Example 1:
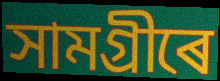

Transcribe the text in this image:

সামগ্ৰীৰে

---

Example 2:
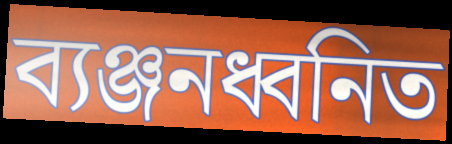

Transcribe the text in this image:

ব্যঞ্জনধ্বনিত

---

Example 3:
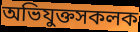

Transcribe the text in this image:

অভিযুক্তসকলক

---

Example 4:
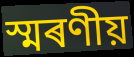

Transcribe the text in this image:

স্মৰণীয়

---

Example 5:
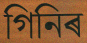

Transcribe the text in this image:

গিনিৰ